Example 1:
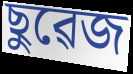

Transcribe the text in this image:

ছুৱেজ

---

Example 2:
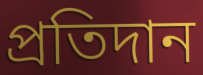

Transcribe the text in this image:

প্ৰতিদান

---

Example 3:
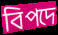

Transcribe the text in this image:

বিপদে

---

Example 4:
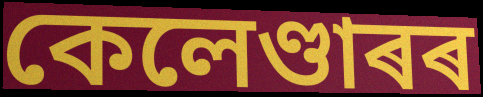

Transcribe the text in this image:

কেলেণ্ডাৰৰ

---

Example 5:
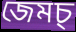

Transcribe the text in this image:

জেমচ্